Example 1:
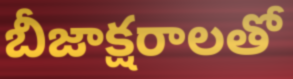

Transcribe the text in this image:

బీజాక్షరాలతో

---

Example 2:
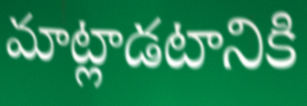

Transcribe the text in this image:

మాట్లాడటానికి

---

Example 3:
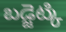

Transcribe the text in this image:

బడ్జెట్కి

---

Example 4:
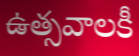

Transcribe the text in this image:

ఉత్సవాలకీ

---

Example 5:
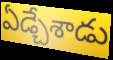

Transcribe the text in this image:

ఏడ్చేశాడు